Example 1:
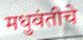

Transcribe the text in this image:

मधुवंतीचे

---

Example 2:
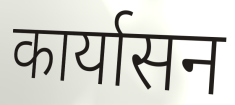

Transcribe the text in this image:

कार्यासन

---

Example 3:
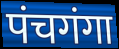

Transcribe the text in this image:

पंचगंगा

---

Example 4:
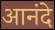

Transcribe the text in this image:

आनंदे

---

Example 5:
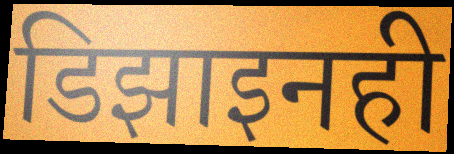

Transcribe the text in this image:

डिझाइनही